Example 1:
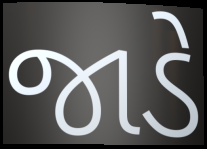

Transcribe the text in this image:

જાડે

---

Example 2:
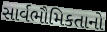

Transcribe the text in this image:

સાર્વભૌમિકતાનો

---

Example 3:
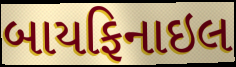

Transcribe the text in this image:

બાયફિનાઇલ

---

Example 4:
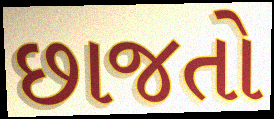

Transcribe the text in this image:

છાજતો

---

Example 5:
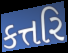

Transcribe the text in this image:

કત્તરિ